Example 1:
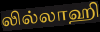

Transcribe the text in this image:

லில்லாஹி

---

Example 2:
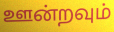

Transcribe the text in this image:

ஊன்றவும்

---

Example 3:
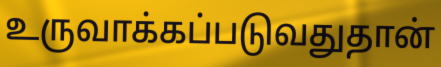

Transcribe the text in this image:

உருவாக்கப்படுவதுதான்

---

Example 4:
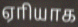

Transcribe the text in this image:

ஏரியாக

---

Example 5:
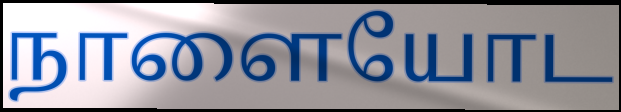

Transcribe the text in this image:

நாளையோட